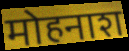
मोहनाश